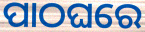
ପାଠଘରେ